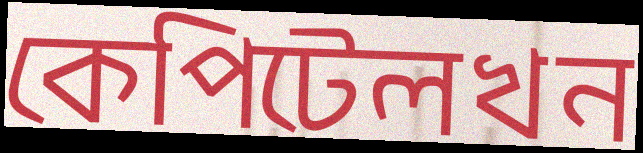
কেপিটেলখন